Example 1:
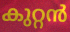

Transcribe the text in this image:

കുറ്റൻ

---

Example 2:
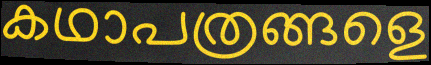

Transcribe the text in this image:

കഥാപത്രങ്ങളെ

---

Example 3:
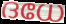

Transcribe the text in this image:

ദധേ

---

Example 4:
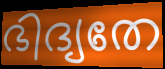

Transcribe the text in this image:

ഭിദ്യതേ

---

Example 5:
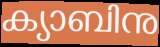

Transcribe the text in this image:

ക്യാബിനു